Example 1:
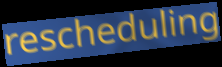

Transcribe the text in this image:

rescheduling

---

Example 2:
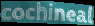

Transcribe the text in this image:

cochineal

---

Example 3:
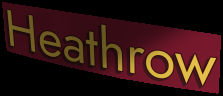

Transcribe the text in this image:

Heathrow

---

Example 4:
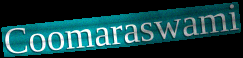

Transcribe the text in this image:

Coomaraswami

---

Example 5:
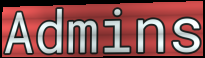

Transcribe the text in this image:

Admins